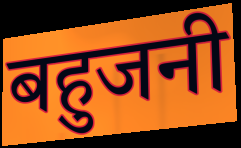
बहुजनी